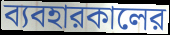
ব্যবহারকালের